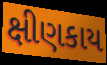
ક્ષીણકાય